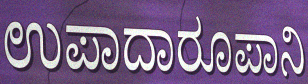
ಉಪಾದಾರೂಪಾನಿ